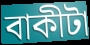
বাকীটা